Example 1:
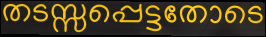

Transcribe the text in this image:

തടസ്സപ്പെട്ടതോടെ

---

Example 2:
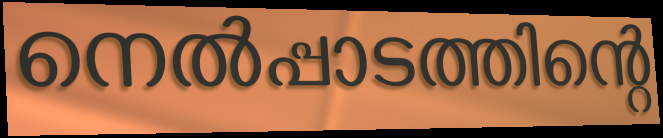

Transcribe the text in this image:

നെൽപ്പാടത്തിന്റെ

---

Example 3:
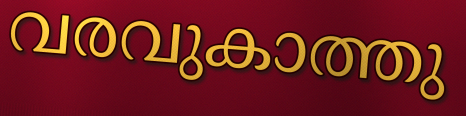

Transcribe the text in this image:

വരവുകാത്തു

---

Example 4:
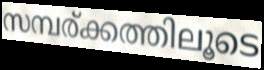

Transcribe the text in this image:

സമ്പര്ക്കത്തിലൂടെ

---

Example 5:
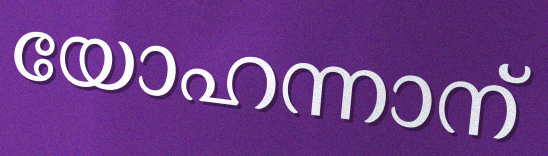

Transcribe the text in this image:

യോഹന്നാന്